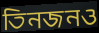
তিনজনও